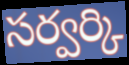
సర్వర్కి